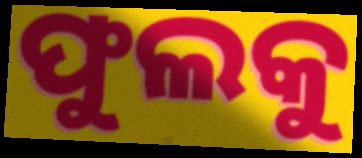
ଫୁଲକୁ